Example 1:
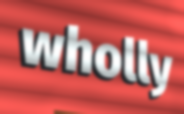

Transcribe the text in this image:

wholly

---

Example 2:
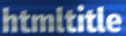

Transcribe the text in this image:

htmltitle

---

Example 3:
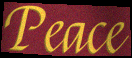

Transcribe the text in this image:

Peace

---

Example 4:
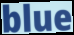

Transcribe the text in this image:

blue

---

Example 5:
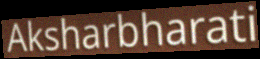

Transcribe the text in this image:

Aksharbharati